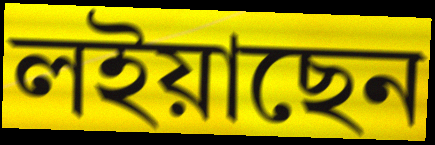
লইয়াছেন